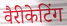
वैरीकेटिंग